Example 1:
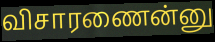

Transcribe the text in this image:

விசாரணைன்னு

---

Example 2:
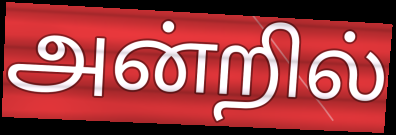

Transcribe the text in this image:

அன்றில்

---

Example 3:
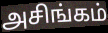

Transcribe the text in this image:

அசிங்கம்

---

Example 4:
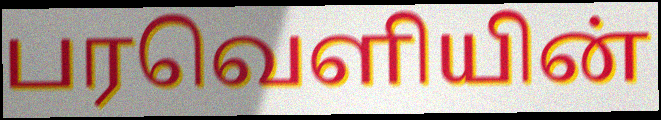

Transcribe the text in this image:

பரவெளியின்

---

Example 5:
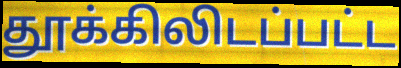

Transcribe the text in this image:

தூக்கிலிடப்பட்ட